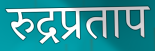
रुद्रप्रताप